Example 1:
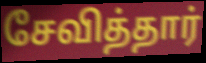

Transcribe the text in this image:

சேவித்தார்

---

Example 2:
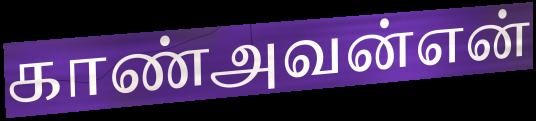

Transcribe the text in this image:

காண்அவன்என்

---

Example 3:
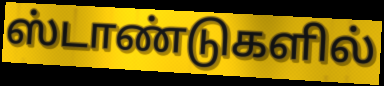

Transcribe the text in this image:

ஸ்டாண்டுகளில்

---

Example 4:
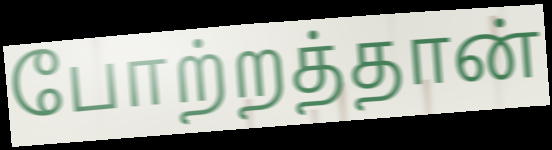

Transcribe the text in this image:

போற்றத்தான்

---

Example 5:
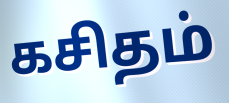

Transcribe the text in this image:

கசிதம்